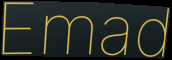
Emad